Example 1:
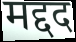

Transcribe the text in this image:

मद्दद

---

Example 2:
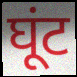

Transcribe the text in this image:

घूंट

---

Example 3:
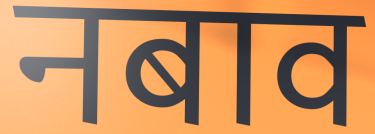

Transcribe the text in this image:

नबाव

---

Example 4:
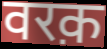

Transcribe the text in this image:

वरक़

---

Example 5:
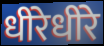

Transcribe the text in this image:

धीरेधीरे